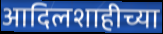
आदिलशाहीच्या